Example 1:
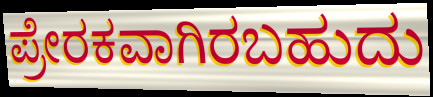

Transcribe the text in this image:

ಪ್ರೇರಕವಾಗಿರಬಹುದು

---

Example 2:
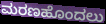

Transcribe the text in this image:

ಮರಣಹೊಂದಲು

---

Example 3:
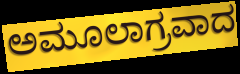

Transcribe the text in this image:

ಅಮೂಲಾಗ್ರವಾದ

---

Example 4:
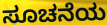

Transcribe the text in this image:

ಸೂಚನೆಯ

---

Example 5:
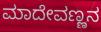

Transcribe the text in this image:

ಮಾದೇವಣ್ಣನ